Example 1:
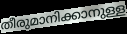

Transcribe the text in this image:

തീരുമാനിക്കാനുള്ള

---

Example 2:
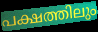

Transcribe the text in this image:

പക്ഷത്തിലും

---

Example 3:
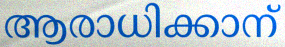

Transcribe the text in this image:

ആരാധിക്കാന്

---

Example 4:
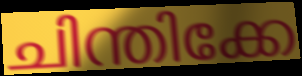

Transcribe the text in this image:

ചിന്തിക്കേ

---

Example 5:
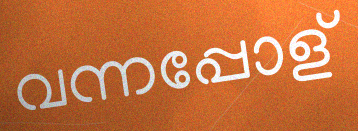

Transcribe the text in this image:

വന്നപ്പോള്